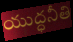
యుద్ధనీతి